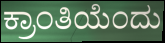
ಕ್ರಾಂತಿಯೆಂದು